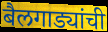
बैलगाड्यांची